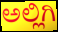
ಅಲ್ಲಿಗಿ